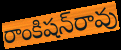
రాంకిషన్‌రావు